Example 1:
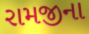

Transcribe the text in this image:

રામજીના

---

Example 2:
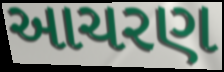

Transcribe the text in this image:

આચરણ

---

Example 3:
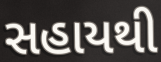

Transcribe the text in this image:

સહાયથી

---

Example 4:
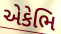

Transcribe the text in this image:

એકેભિ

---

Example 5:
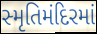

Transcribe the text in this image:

સ્મૃતિમંદિરમાં